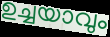
ഉച്ചയാവും